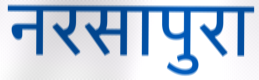
नरसापुरा